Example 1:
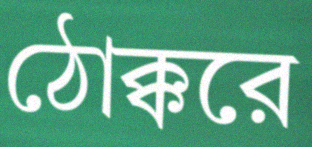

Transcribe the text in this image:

ঠোক্করে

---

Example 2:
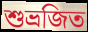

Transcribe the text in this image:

শুভ্রজিত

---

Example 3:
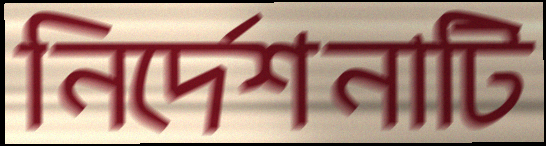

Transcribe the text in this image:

নির্দেশনাটি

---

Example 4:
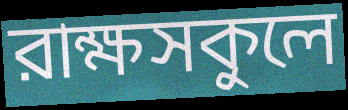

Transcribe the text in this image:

রাক্ষসকুলে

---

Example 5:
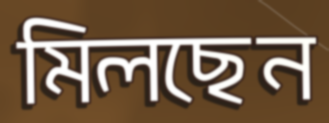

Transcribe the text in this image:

মিলছেন